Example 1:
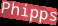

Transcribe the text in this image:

Phipps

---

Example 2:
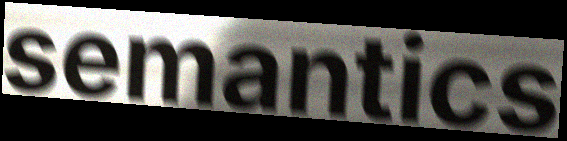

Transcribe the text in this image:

semantics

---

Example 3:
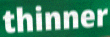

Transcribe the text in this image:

thinner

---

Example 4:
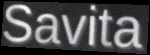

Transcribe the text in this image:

Savita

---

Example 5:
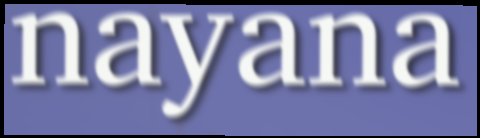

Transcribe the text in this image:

nayana